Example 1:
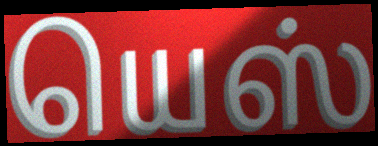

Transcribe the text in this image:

யெஸ்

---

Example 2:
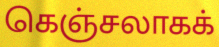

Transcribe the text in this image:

கெஞ்சலாகக்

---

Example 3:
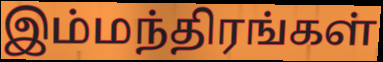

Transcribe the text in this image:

இம்மந்திரங்கள்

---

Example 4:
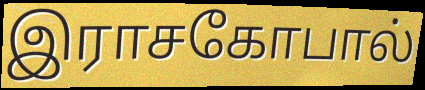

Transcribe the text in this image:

இராசகோபால்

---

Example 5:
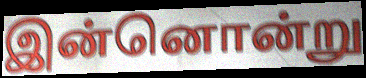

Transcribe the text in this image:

இன்னொன்று